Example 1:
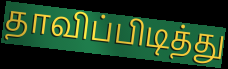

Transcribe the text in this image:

தாவிப்பிடித்து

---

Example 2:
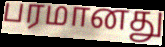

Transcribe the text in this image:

பரமானது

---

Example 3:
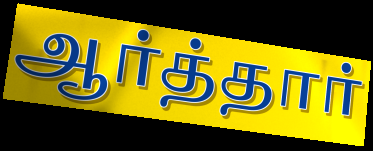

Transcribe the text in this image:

ஆர்த்தார்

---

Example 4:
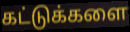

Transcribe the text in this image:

கட்டுக்களை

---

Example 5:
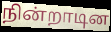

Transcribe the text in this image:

நின்றாடின